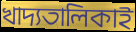
খাদ্যতালিকাই